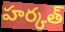
హర్కత్